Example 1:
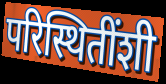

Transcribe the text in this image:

परिस्थितींशी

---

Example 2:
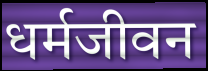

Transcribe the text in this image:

धर्मजीवन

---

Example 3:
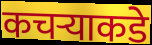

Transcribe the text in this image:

कचऱ्याकडे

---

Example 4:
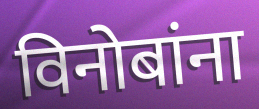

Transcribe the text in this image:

विनोबांना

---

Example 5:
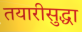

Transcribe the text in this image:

तयारीसुद्धा